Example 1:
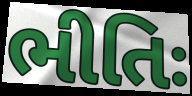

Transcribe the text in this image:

ભીતિઃ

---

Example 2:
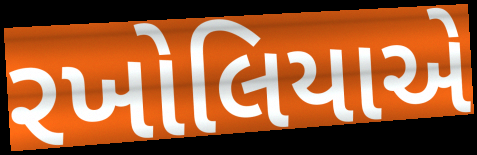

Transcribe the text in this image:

રખોલિયાએ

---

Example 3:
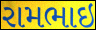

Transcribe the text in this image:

રામભાઇ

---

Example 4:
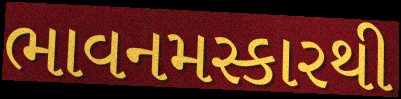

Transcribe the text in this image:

ભાવનમસ્કારથી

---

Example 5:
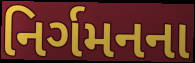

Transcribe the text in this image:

નિર્ગમનના